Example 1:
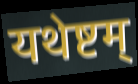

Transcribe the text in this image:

यथेष्टम्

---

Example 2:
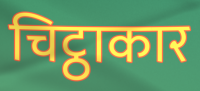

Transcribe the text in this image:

चिट्ठाकार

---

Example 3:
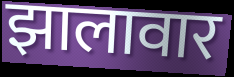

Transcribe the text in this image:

झालावार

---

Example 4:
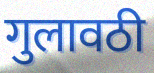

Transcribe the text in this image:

गुलावठी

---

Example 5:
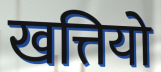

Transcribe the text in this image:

खत्तियो